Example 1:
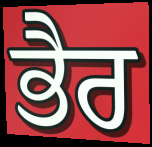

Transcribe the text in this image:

ਭੈਰ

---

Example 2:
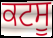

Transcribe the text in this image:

ਕਟਸੂ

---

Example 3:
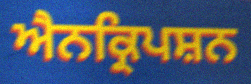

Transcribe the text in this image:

ਐਨਕ੍ਰਿਪਸ਼ਨ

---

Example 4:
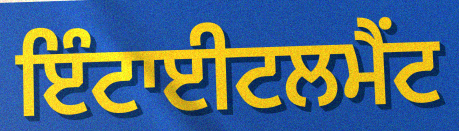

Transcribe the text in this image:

ਇੰਟਾਈਟਲਮੈਂਟ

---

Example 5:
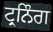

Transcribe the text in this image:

ਟ੍ਰਨਿੰਗ